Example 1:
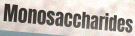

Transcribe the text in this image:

Monosaccharides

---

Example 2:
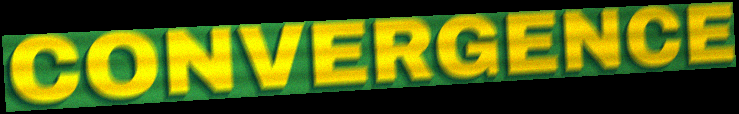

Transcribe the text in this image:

CONVERGENCE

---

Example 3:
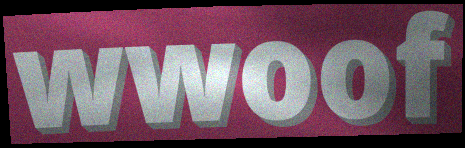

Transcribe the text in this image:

wwoof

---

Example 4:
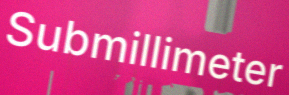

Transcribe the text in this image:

Submillimeter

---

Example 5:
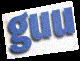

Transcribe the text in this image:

guu